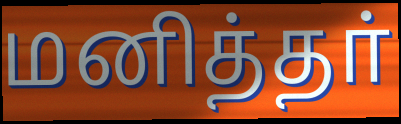
மனித்தர்